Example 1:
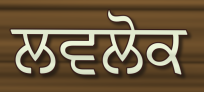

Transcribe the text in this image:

ਲਵਲੋਕ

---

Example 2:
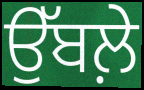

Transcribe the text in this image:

ਉੱਬਲ਼ੇ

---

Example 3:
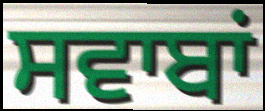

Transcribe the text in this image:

ਸਵਾਬਾਂ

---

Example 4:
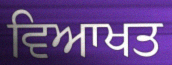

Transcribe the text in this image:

ਵਿਆਖਤ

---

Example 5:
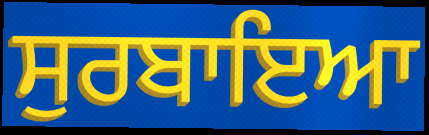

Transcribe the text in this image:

ਸੁਰਬਾਇਆ